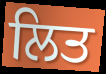
ਲਿਤ